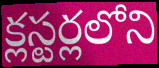
క్లస్టర్లలోని